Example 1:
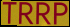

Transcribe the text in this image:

TRRP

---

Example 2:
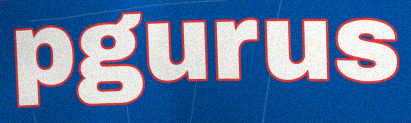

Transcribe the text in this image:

pgurus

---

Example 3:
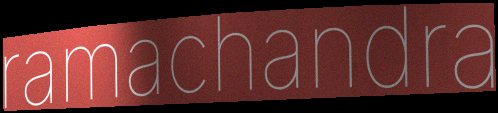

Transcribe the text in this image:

ramachandra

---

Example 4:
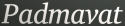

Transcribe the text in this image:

Padmavat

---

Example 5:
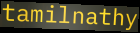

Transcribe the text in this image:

tamilnathy